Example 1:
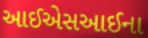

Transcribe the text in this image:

આઈએસઆઈના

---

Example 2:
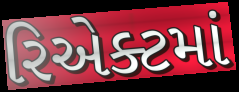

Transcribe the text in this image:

રિએક્ટમાં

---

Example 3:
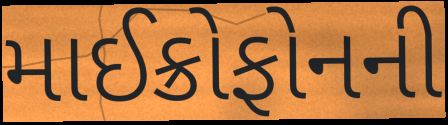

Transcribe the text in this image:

માઈક્રોફોનની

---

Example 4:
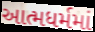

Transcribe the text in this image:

આત્મધર્મમાં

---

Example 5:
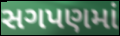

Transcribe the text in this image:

સગપણમાં